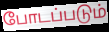
போடப்படும்